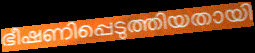
ഭീഷണിപ്പെടുത്തിയതായി